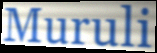
Muruli